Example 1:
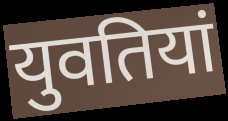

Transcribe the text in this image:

युवतियां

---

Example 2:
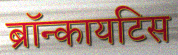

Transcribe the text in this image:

ब्रॉन्कायटिस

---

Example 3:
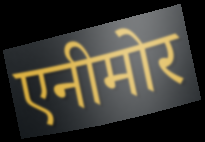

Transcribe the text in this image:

एनीमोर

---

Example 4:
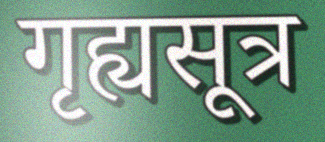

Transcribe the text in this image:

गृह्यसूत्र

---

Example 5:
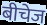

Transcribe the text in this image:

बीचेज